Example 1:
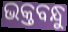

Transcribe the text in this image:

ଭକ୍ତବନ୍ଧୁ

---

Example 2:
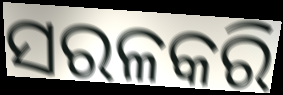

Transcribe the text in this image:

ସରଳକରି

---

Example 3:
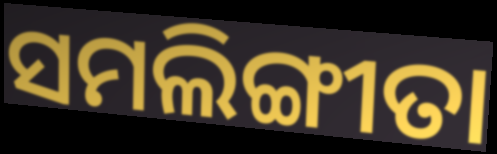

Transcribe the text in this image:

ସମଲିଙ୍ଗୀତା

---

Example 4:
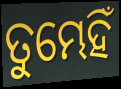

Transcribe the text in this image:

ତୁମ୍ଭେହିଁ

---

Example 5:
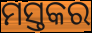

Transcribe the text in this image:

ମସ୍ତକର